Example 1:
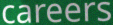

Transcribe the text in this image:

careers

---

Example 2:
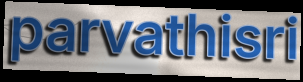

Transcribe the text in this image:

parvathisri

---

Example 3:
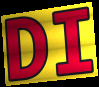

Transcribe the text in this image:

DI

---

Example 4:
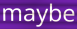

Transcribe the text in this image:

maybe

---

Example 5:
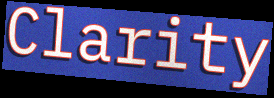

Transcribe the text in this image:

Clarity